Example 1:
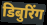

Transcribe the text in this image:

डिबुरिंग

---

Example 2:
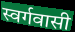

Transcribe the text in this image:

स्‍वर्गवासी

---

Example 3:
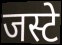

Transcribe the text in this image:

जस्टे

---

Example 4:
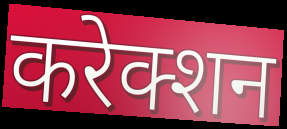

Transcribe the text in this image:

करेक्शन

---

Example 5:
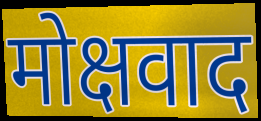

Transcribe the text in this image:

मोक्षवाद